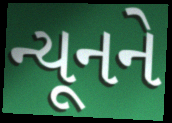
ન્યૂનને